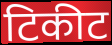
टिकीट